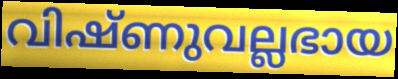
വിഷ്ണുവല്ലഭായ